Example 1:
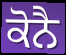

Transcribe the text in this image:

ਕੋਨੈ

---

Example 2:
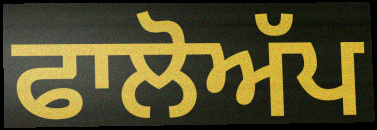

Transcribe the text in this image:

ਫਾਲੋਅੱਪ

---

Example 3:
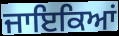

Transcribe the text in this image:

ਜਾਇਕਿਆਂ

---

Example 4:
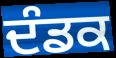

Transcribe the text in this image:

ਦੰਡਕ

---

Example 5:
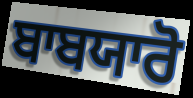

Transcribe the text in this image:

ਬਾਬਯਾਰੋ